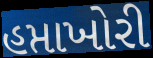
હપ્તાખોરી